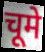
चूमे